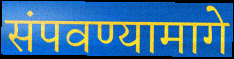
संपवण्यामागे